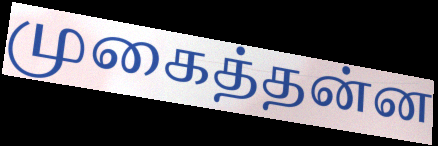
முகைத்தன்ன